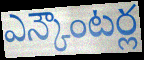
ఎన్కౌంటర్ల